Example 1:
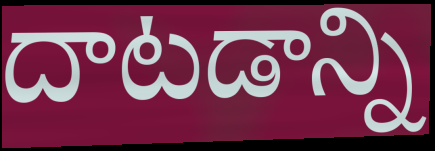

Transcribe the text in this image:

దాటడాన్ని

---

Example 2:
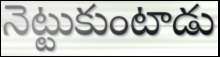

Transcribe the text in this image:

నెట్టుకుంటాడు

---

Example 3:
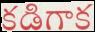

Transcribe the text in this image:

కడిగాక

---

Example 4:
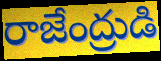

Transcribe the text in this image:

రాజేంద్రుడి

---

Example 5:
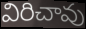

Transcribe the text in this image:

విరిచావు